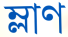
ম্লাণ